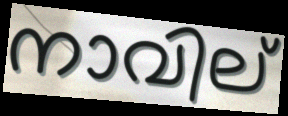
നാവില്